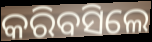
କରିବସିଲେ